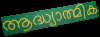
ആദ്ധ്യാത്മിക